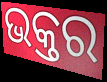
ଭକ୍ତର